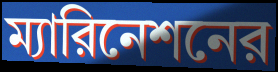
ম্যারিনেশনের